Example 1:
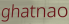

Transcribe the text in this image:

ghatnao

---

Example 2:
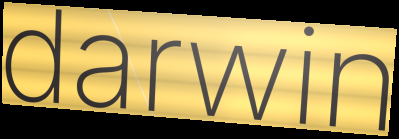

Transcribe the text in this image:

darwin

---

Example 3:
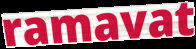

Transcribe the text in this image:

ramavat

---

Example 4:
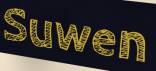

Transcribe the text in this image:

Suwen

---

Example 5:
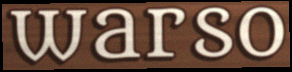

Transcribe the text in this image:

warso